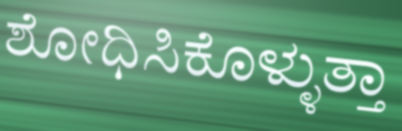
ಶೋಧಿಸಿಕೊಳ್ಳುತ್ತಾ